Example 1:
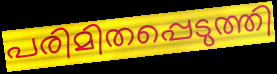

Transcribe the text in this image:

പരിമിതപ്പെടുത്തി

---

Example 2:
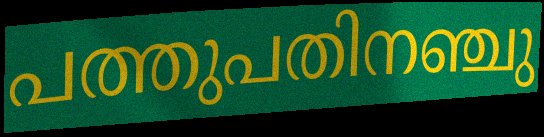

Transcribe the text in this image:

പത്തുപതിനഞ്ചു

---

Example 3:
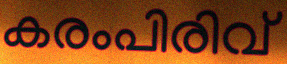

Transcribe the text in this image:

കരംപിരിവ്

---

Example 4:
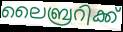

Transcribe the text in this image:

ലൈബ്രറിക്ക്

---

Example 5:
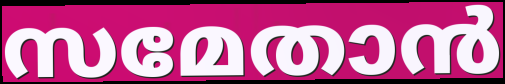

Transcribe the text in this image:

സമേതാൻ